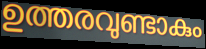
ഉത്തരവുണ്ടാകും